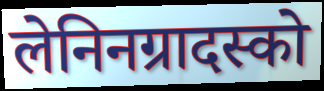
लेनिनग्रादस्को